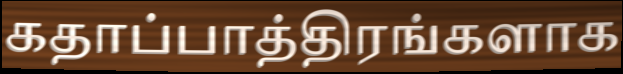
கதாப்பாத்திரங்களாக